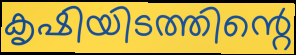
കൃഷിയിടത്തിന്റെ